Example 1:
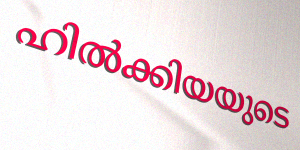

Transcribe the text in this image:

ഹിൽക്കിയയുടെ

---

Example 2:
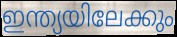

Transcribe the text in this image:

ഇന്ത്യയിലേക്കും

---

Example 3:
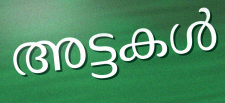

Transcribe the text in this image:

അട്ടകൾ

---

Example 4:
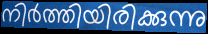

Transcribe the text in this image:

നിർത്തിയിരിക്കുന്നു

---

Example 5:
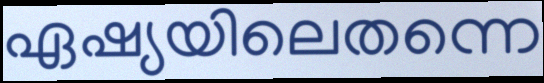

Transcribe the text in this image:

ഏഷ്യയിലെതന്നെ